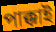
পাক্কাই